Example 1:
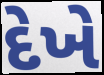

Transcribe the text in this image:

દેખે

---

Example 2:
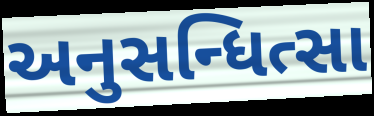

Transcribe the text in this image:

અનુસન્ધિત્સા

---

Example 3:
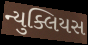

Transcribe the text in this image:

ન્યુક્લિયસ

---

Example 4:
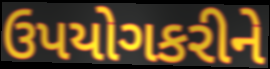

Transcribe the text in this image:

ઉપયોગકરીને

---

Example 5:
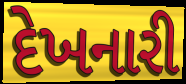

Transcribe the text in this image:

દેખનારી